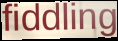
fiddling